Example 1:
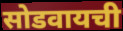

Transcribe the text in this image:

सोडवायची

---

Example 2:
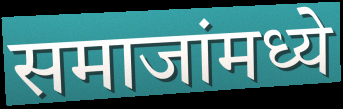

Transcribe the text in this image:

समाजांमध्ये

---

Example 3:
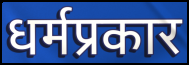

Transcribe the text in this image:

धर्मप्रकार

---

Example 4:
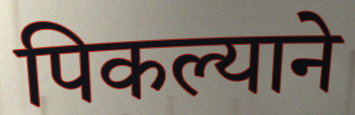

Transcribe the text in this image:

पिकल्याने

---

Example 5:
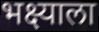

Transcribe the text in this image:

भक्ष्याला